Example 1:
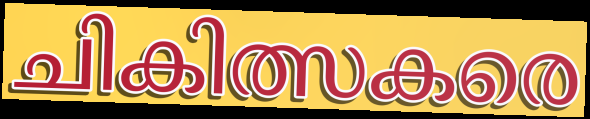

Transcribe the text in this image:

ചികിത്സകരെ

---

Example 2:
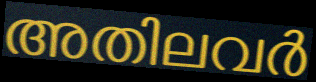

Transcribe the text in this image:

അതിലവർ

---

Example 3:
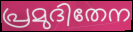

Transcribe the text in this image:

പ്രമുദിതേന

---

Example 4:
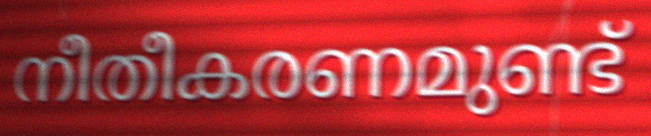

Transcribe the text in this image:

നീതീകരണമുണ്ട്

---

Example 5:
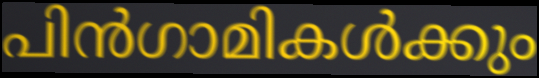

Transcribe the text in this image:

പിൻഗാമികൾക്കും